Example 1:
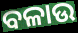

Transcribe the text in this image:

ବଳାଉ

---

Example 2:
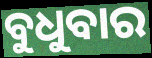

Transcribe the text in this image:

ବୁଧୁବାର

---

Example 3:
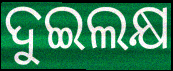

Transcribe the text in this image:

ଦୁଇଲକ୍ଷ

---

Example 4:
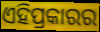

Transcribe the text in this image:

ଏହିପ୍ରକାରର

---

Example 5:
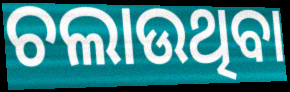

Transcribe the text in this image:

ଚଲାଉଥିବା